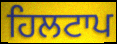
ਹਿਲਟਾਪ